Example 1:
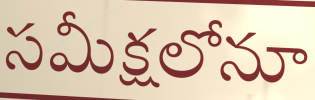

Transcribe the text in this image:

సమీక్షలోనూ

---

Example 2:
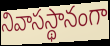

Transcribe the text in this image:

నివాసస్థానంగా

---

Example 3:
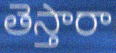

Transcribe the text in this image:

తెస్తారా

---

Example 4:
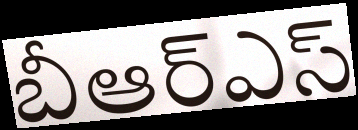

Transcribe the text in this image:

బీఆర్ఎస్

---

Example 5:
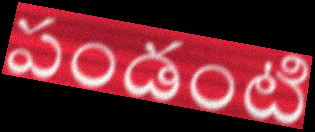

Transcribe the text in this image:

పండంటి